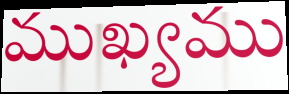
ముఖ్యము